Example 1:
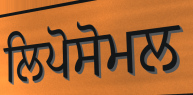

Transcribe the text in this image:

ਲਿਪੋਸੋਮਲ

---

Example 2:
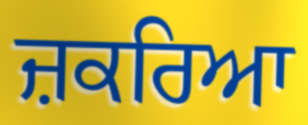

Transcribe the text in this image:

ਜ਼ਕਰਿਆ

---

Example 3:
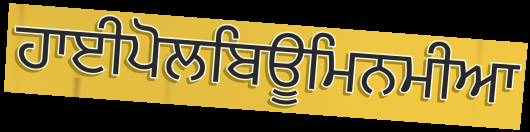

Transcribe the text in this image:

ਹਾਈਪੋਲਬਿਊਮਿਨਮੀਆ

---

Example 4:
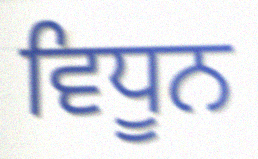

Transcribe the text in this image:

ਵਿਧੂਨ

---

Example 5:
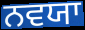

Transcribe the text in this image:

ਨਵਯਾ